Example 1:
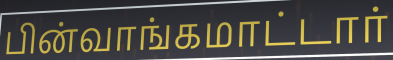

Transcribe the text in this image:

பின்வாங்கமாட்டார்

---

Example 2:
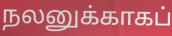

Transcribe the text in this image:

நலனுக்காகப்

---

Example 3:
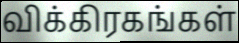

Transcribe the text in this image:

விக்கிரகங்கள்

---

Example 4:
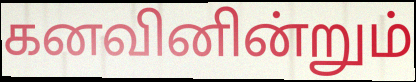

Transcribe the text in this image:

கனவினின்றும்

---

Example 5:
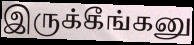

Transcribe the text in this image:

இருக்கீங்கனு